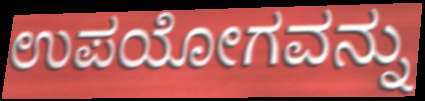
ಉಪಯೋಗವನ್ನು